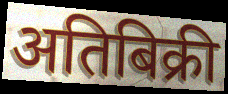
अतिबिक्री